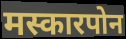
मस्कारपोन